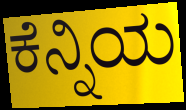
ಕೆನ್ನಿಯ